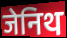
जेनिथ